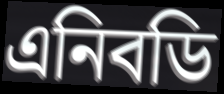
এনিবডি